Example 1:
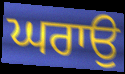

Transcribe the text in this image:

ਘਰਾਉ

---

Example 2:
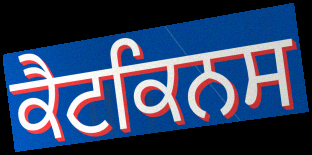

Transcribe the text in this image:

ਕੈਟਕਿਨਸ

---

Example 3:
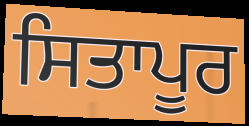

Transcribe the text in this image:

ਸਿਤਾਪੂਰ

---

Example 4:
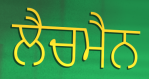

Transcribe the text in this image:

ਲੈਚਮੈਨ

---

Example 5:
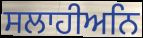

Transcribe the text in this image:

ਸਲਾਹੀਅਨਿ